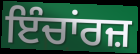
ਇੰਚਾਂਰਜ਼